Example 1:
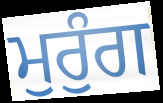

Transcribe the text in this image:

ਮੁਰੁੰਗ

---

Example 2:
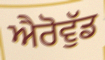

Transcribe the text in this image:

ਐਰੋਵੁੱਡ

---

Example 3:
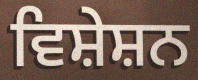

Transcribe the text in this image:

ਵਿਸ਼ੇਸ਼ਨ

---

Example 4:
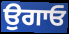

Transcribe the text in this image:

ਉਗਾਓ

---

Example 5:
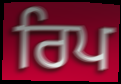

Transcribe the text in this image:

ਰਿਪ